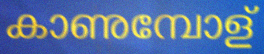
കാണുമ്പോള്